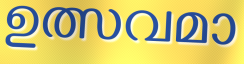
ഉത്സവമാ